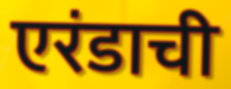
एरंडाची